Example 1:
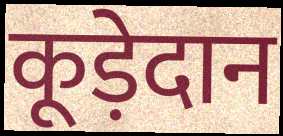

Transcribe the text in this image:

कूड़ेदान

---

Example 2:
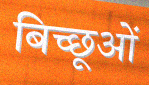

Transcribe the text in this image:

बिच्छूओं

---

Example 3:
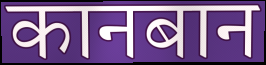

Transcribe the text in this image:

कानबान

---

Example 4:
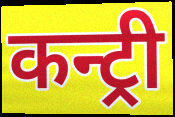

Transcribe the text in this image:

कन्ट्री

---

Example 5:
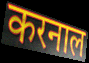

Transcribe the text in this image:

करनाल